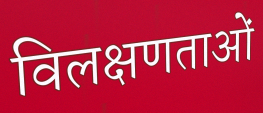
विलक्षणताओं